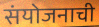
संयोजनाची